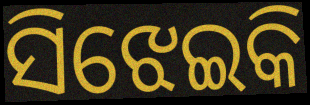
ସିଝେଇକି